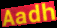
Aadh